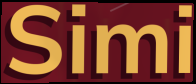
Simi